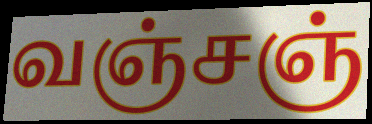
வஞ்சஞ்